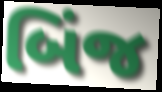
બિંજ